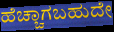
ಹೆಚ್ಚಾಗಬಹುದೇ